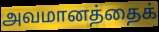
அவமானத்தைக்